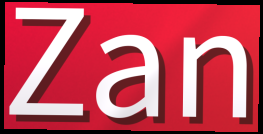
Zan